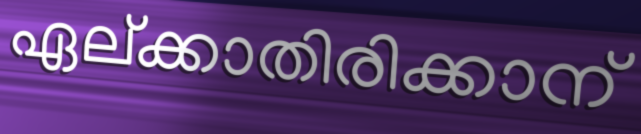
ഏല്ക്കാതിരിക്കാന്